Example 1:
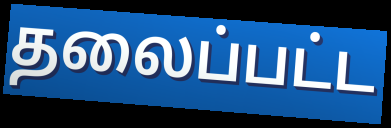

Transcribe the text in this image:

தலைப்பட்ட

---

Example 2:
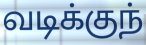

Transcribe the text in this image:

வடிக்குந்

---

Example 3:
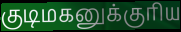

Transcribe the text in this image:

குடிமகனுக்குரிய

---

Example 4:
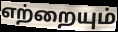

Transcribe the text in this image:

எற்றையும்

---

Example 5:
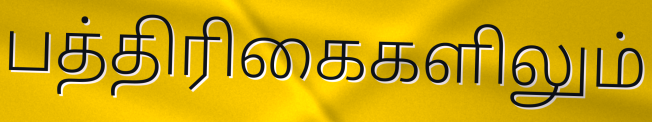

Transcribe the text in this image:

பத்திரிகைகளிலும்